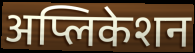
अप्लिकेशन